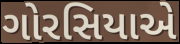
ગોરસિયાએ